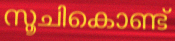
സൂചികൊണ്ട്